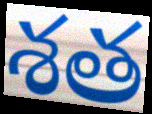
శత